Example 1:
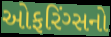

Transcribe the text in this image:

ઓફરિંગ્સનો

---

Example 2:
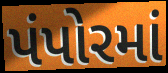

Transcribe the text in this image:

પંપોરમાં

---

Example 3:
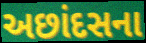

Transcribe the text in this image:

અછાંદસના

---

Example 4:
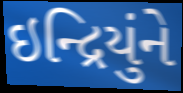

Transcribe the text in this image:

ઇન્દ્રિયુંને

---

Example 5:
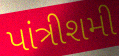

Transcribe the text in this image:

પાંત્રીશમી